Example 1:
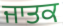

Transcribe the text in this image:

ਜਾਤਕ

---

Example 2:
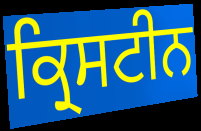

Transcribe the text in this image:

ਕ੍ਰਿਸਟੀਨ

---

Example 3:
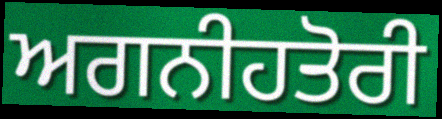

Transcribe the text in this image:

ਅਗਨੀਹਤੋਰੀ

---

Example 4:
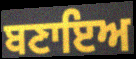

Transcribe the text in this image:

ਬਣਾਇਅ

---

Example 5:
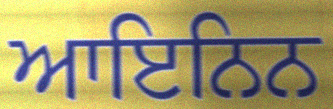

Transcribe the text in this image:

ਆਇਨਿਨ